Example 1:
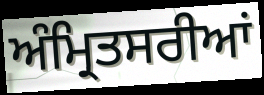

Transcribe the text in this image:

ਅੰਮ੍ਰਿਤਸਰੀਆਂ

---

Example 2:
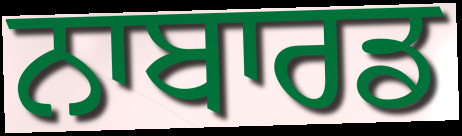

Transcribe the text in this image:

ਨਾਬਾਰਡ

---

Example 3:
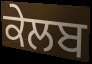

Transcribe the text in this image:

ਕੇਲਬ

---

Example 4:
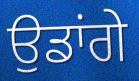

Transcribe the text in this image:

ਉਡਾਂਗੇ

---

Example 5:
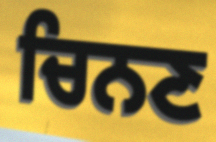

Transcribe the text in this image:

ਚਿਨਣ